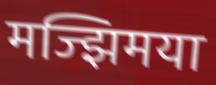
मज्झिमया